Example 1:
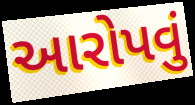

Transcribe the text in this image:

આરોપવું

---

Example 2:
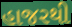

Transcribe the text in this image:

હાજરથી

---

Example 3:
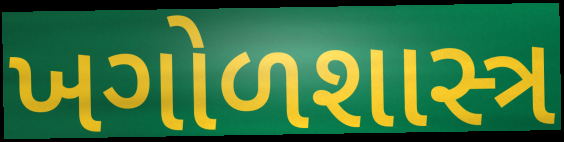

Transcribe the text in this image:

ખગોળશાસ્ત્ર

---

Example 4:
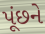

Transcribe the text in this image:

પૂંછને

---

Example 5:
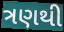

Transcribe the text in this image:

ત્રણથી